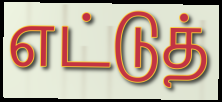
எட்டுத்